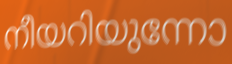
നീയറിയുന്നോ